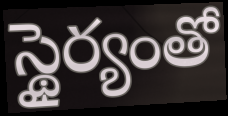
స్థైర్యంతో